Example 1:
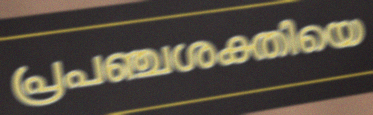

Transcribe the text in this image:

പ്രപഞ്ചശക്തിയെ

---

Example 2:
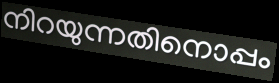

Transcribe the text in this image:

നിറയുന്നതിനൊപ്പം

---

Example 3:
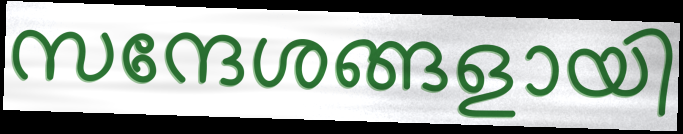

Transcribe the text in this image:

സന്ദേശങ്ങളായി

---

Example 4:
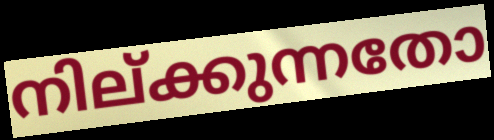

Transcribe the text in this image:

നില്ക്കുന്നതോ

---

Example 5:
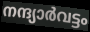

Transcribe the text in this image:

നന്ദ്യാർവട്ടം